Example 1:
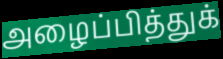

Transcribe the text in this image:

அழைப்பித்துக்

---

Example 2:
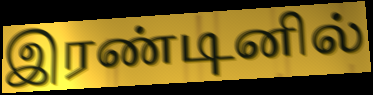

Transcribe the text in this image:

இரண்டினில்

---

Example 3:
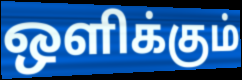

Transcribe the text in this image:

ஒளிக்கும்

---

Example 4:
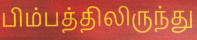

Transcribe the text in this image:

பிம்பத்திலிருந்து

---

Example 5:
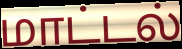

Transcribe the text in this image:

மாட்டல்